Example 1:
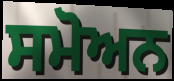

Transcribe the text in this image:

ਸਮੋਅਨ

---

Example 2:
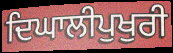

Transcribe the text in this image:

ਦਿਘਾਲੀਪੁਖੁਰੀ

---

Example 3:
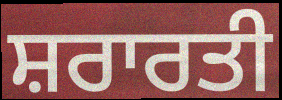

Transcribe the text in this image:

ਸ਼ਰਾਰਤੀ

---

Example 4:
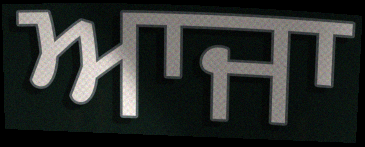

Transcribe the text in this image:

ਆਜਾ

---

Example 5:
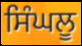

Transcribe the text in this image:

ਸਿੰਘਲੂ